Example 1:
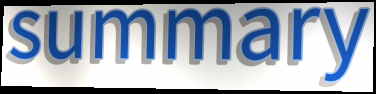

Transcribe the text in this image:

summary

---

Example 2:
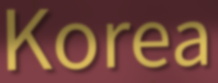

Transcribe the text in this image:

Korea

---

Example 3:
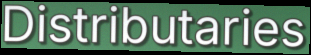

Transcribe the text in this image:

Distributaries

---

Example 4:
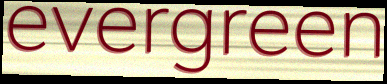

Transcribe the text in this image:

evergreen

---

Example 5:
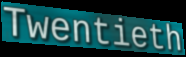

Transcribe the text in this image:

Twentieth